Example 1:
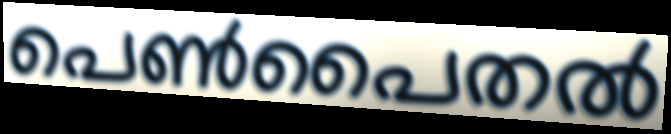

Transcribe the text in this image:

പെൺപൈതൽ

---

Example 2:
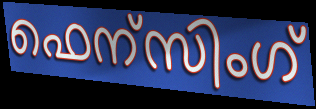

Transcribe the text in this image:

ഫെന്സിംഗ്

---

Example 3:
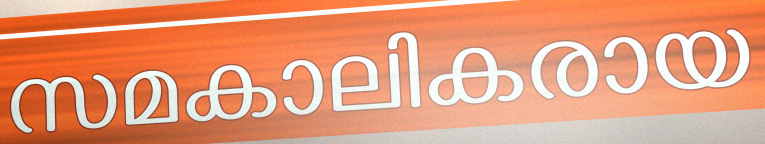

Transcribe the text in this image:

സമകാലികരായ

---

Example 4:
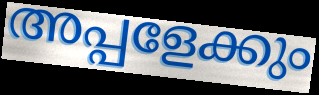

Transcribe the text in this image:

അപ്പളേക്കും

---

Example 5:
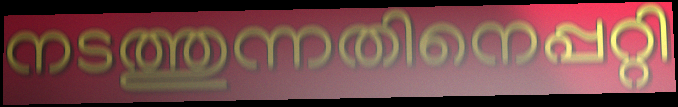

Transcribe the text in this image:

നടത്തുന്നതിനെപ്പറ്റി